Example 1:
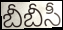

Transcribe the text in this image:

బీబీసీ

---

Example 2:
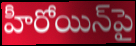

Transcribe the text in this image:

హీరోయిన్‌పై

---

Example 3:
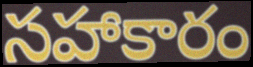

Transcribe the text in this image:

సహాకారం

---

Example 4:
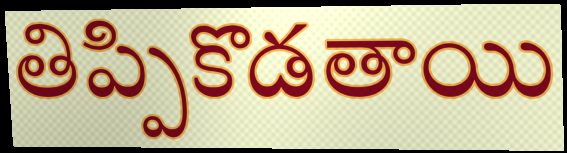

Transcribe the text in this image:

తిప్పికొడతాయి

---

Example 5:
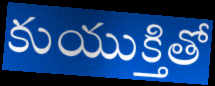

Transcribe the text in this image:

కుయుక్తితో